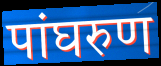
पांघरुण